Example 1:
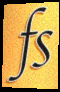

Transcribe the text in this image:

fs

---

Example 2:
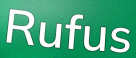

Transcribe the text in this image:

Rufus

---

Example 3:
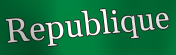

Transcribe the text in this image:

Republique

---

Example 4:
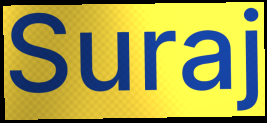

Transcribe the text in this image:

Suraj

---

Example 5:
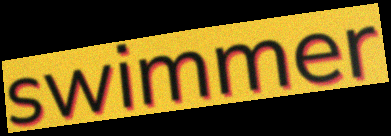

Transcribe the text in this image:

swimmer